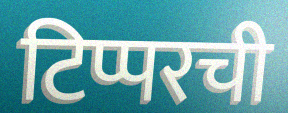
टिप्परची